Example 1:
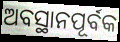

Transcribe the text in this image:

ଅବସ୍ଥାନପୂର୍ବକ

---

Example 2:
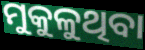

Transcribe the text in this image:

ମୁକୁଳୁଥିବା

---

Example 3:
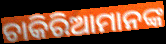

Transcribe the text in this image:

ଚାକିରିଆମାନଙ୍କ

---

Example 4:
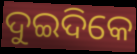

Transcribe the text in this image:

ଦୁଇଦିକେ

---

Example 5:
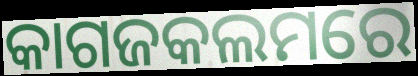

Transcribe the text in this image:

କାଗଜକଲମରେ